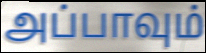
அப்பாவும்